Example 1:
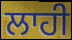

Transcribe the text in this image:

ਲਾਹੀ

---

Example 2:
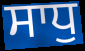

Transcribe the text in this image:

ਸਾਧੁ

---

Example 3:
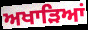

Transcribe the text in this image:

ਅਖਾੜਿਆਂ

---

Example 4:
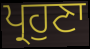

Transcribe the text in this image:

ਪ੍ਰਹੁਣਾ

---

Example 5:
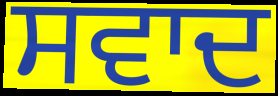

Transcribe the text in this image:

ਸਵਾਦ